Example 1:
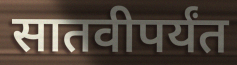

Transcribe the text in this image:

सातवीपर्यंत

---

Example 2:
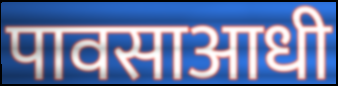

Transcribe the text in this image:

पावसाआधी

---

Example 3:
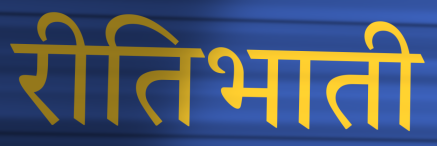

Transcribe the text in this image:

रीतिभाती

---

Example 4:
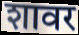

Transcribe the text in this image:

शावर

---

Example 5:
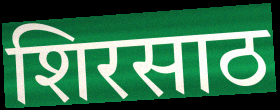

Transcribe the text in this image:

शिरसाठ